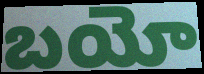
బయో